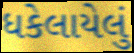
ધકેલાયેલું